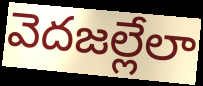
వెదజల్లేలా